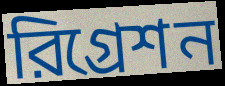
রিগ্রেশন